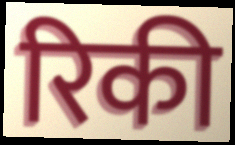
रिकी